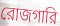
রোজগারি